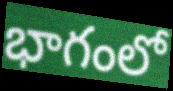
భాగంలో